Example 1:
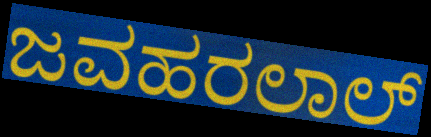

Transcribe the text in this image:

ಜವಹರಲಾಲ್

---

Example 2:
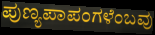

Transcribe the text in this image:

ಪುಣ್ಯಪಾಪಂಗಳೆಂಬವು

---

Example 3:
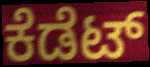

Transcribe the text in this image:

ಕೆಡೆಟ್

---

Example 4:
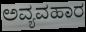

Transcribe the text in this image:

ಅವ್ಯವಹಾರ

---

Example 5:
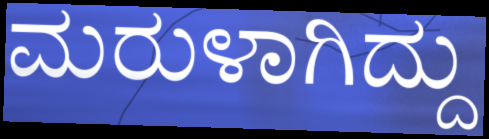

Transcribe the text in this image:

ಮರುಳಾಗಿದ್ದು